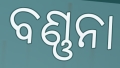
ବଣ୍ଣନା